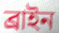
ব্রাইন